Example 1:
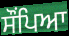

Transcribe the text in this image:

ਸੌਂਪਿਆ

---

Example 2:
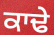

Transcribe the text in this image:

ਕਾਢੇ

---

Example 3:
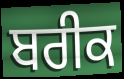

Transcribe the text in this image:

ਬਰੀਕ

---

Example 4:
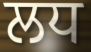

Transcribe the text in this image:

ਲਧ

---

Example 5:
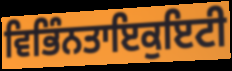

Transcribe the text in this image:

ਵਿਭਿੰਨਤਾਇਕੁਇਟੀ